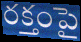
రక్తంపై